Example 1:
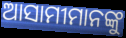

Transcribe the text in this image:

ଆସାମୀମାନଙ୍କୁ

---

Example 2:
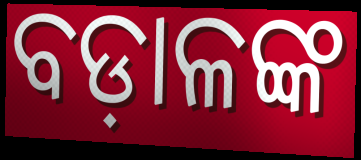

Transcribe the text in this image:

ବଡ଼ାଳଙ୍କ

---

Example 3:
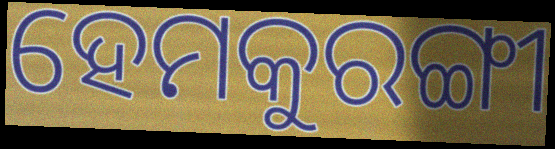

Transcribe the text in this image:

ହେମକୁରଙ୍ଗୀ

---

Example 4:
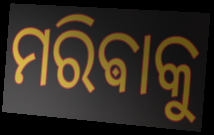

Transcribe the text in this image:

ମରିଵାକୁ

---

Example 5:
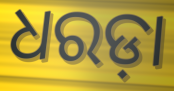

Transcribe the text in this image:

ଧରଡ଼ା